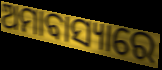
ଅମାବାସ୍ୟାରେ